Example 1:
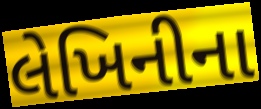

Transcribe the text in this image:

લેખિનીના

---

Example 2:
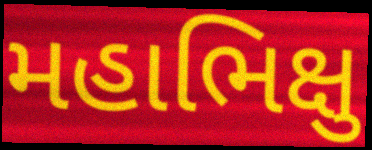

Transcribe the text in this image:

મહાભિક્ષુ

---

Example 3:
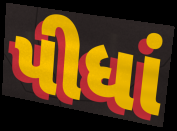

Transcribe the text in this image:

પીધાં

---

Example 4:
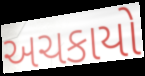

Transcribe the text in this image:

અચકાયો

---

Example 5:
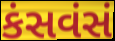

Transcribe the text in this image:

કંસવંસં